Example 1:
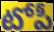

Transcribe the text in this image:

టోపీ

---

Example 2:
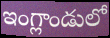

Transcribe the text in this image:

ఇంగ్లాండులో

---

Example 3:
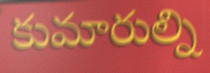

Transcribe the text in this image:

కుమారుల్ని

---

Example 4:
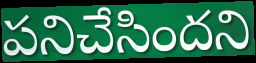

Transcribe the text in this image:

పనిచేసిందని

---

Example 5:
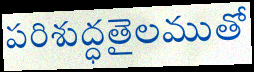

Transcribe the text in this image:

పరిశుద్ధతైలముతో